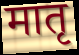
मातृ